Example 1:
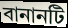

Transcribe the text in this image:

বানানটি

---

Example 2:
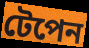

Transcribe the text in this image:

টেপেন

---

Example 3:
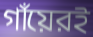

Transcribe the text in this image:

গাঁয়েরই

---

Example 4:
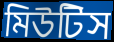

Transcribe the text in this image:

মিউটিস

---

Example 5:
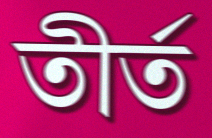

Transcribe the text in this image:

তীর্ত